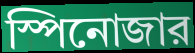
স্পিনোজার